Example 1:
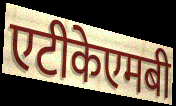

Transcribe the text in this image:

एटीकेएमबी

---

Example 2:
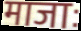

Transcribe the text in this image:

माजाः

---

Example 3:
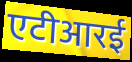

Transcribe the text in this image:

एटीआरई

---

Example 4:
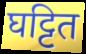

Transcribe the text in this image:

घट्टित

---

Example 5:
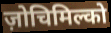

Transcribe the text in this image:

ज़ोचिमिल्को